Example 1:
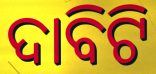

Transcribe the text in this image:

ଦାବିଟି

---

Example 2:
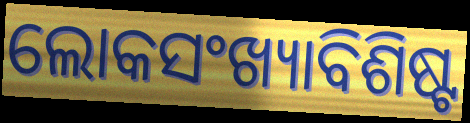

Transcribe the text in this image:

ଲୋକସଂଖ୍ୟାବିଶିଷ୍ଟ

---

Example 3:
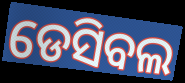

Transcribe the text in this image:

ଡେସିବଲ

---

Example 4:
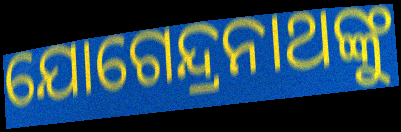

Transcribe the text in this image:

ଯୋଗେନ୍ଦ୍ରନାଥଙ୍କୁ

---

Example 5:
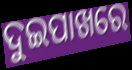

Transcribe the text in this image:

ଦୁଇପାଖରେ